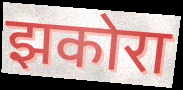
झकोरा